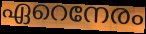
ഏറെനേരം